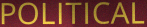
POLITICAL